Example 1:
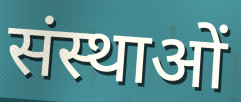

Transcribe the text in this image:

संस्थाओं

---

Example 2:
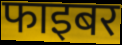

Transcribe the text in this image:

फाइबर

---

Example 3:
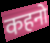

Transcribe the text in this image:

कहनो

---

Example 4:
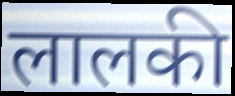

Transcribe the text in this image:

लालकी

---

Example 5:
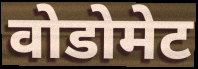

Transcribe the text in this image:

वोडोमेट